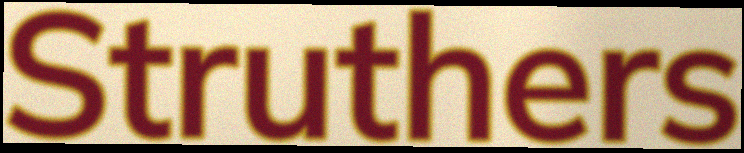
Struthers